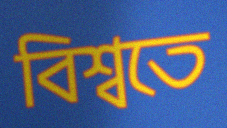
বিশ্বতে